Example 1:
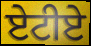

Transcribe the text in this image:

ਏਟੀਏ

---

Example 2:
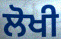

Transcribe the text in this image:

ਲੋਖੀ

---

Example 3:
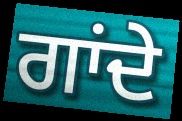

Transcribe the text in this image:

ਗਾਂਦੇ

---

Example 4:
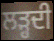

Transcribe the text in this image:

ਲੜ੍ਹਦੀ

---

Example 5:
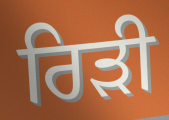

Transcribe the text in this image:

ਰਿੜੀ